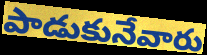
పాడుకునేవారు